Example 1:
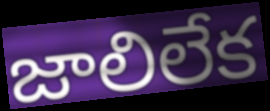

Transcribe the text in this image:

జాలిలేక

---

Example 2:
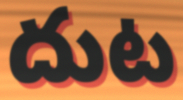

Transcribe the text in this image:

దుట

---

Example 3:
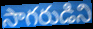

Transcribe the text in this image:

సాగరుడిని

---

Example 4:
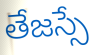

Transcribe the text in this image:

తేజస్సే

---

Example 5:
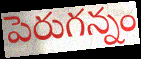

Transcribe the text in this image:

పెరుగన్నం